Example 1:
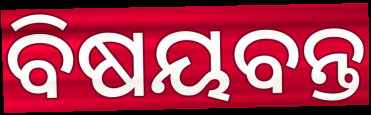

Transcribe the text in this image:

ବିଷୟବନ୍ତ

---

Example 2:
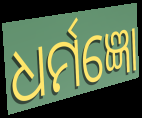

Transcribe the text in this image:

ଧର୍ମଜ୍ଞୋ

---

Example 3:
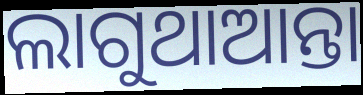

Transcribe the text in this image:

ଲାଗୁଥାଆନ୍ତା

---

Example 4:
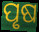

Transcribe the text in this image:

ପୃଷ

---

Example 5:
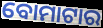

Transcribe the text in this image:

ବୋମାଟାର